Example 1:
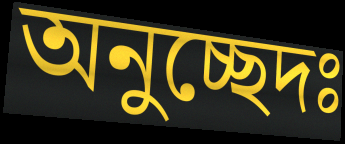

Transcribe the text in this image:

অনুচ্ছেদঃ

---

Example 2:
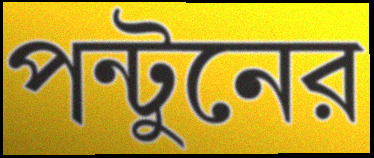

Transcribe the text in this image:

পন্টুনের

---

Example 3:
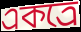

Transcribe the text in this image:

একত্রে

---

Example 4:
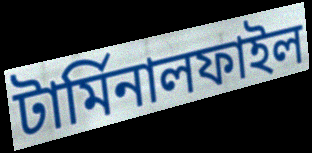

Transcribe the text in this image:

টার্মিনালফাইল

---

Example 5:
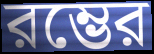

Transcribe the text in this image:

রম্ভের